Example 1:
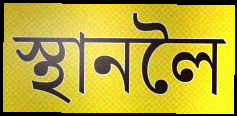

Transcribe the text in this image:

স্থানলৈ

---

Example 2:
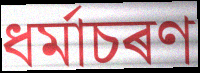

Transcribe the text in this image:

ধৰ্মাচৰণ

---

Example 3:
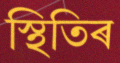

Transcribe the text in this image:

স্থিতিৰ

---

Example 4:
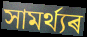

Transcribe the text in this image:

সামৰ্থ্যৰ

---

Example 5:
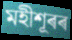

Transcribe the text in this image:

মহীশূৰৰ